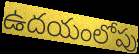
ఉదయంలోపు